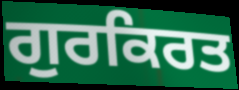
ਗੁਰਕਿਰਤ